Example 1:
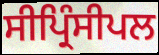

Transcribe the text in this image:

ਸੀਪ੍ਰਿੰਸੀਪਲ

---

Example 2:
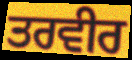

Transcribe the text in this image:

ਤਰਵੀਰ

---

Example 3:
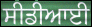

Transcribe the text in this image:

ਸੀਡੀਆਈ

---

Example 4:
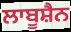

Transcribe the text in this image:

ਲਾਬੂਸ਼ੈਨ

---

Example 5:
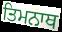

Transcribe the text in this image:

ਤਿਮਨਾਥ